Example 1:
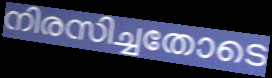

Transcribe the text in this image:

നിരസിച്ചതോടെ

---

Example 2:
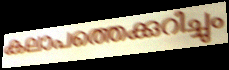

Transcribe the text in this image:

കലാപത്തെക്കുറിച്ചും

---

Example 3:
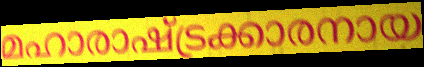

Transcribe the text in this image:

മഹാരാഷ്ട്രക്കാരനായ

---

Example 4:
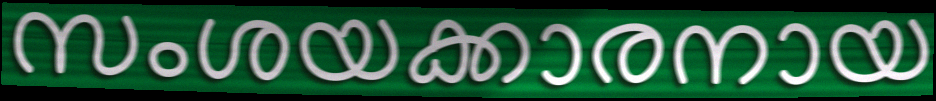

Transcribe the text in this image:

സംശയക്കാരനായ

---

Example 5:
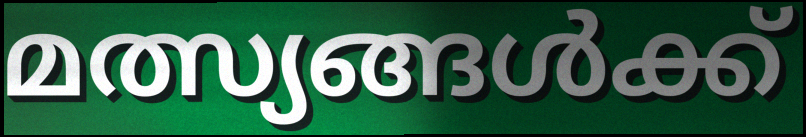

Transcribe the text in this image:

മത്സ്യങ്ങൾക്ക്